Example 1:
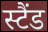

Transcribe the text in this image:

स्टैंड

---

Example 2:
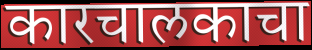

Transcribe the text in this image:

कारचालकाचा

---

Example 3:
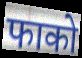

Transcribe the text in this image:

फाको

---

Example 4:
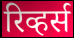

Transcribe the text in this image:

रिव्हर्स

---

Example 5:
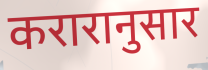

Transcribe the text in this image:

करारानुसार